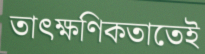
তাৎক্ষণিকতাতেই